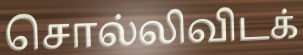
சொல்லிவிடக்